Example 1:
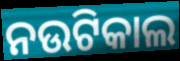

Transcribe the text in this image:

ନଉଟିକାଲ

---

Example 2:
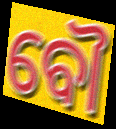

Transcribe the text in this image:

ବୌ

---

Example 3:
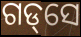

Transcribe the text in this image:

ଗଡ୍‌ସେ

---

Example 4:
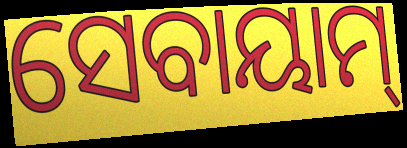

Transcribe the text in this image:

ସେବାୟାମ୍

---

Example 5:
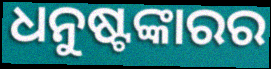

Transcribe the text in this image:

ଧନୁଷ୍ଟଙ୍କାରର